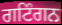
ਗਟਿੰਗਨ